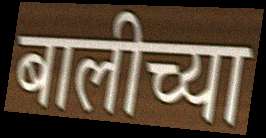
बालीच्या